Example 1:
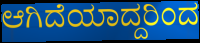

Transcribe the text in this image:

ಆಗಿದೆಯಾದ್ದರಿಂದ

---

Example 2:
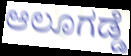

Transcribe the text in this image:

ಆಲೂಗಡ್ಡೆ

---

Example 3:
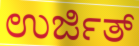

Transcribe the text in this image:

ಉರ್ಜಿತ್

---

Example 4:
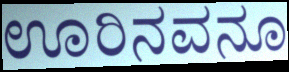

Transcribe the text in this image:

ಊರಿನವನೂ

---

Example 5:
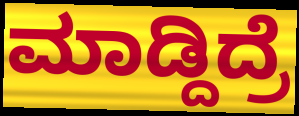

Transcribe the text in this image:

ಮಾಡ್ದಿದ್ರೆ